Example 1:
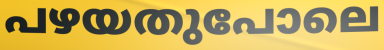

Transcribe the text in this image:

പഴയതുപോലെ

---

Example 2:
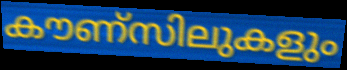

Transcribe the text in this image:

കൗണ്സിലുകളും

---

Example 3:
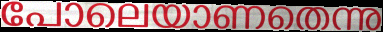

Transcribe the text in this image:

പോലെയാണതെന്നു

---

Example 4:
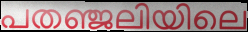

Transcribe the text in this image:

പതഞ്ജലിയിലെ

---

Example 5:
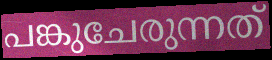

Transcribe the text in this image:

പങ്കുചേരുന്നത്